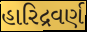
હારિદ્રવર્ણ